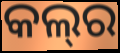
କଲ୍‌ର